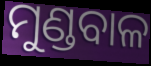
ମୁଣ୍ଡବାଳ